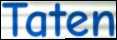
Taten